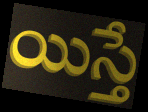
యిస్తే